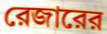
রেজারের